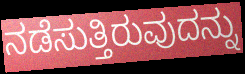
ನಡೆಸುತ್ತಿರುವುದನ್ನು